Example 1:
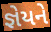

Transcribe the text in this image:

જ્ઞેયને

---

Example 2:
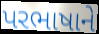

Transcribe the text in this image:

પરભાષાને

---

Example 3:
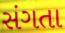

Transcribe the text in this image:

સંગતા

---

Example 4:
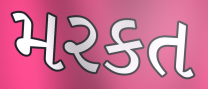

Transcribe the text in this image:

મરકત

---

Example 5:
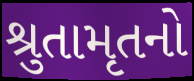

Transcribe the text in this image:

શ્રુતામૃતનો